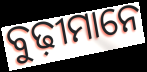
ବୁଢ଼ୀମାନେ